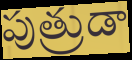
పుత్రుడా